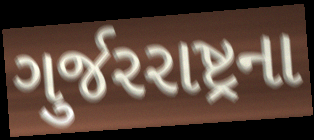
ગુર્જરરાષ્ટ્રના